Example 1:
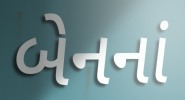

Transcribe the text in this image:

બેનનાં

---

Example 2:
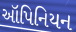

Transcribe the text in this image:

ઑપિનિયન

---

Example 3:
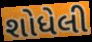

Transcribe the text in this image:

શોધેલી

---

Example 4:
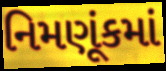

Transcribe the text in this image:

નિમણૂંકમાં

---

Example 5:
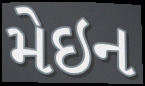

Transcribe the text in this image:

મેઇન